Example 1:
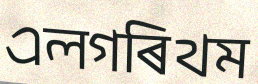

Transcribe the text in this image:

এলগৰিথম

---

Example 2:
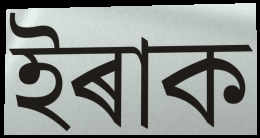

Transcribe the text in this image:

ইৰাক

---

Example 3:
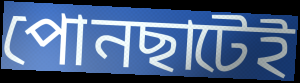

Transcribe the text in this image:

পোনছাটেই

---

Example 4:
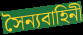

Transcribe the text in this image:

সৈন্যবাহিনী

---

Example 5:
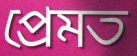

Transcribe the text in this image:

প্ৰেমত